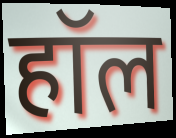
हॉल